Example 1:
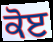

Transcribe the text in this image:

ਕੋੲ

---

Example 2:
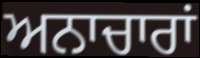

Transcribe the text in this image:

ਅਨਾਚਾਰਾਂ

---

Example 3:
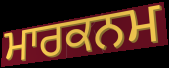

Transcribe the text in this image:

ਮਾਰਕਨਮ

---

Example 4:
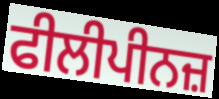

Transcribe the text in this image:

ਫੀਲੀਪੀਨਜ਼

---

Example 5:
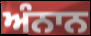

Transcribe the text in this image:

ਅੰਨਾਨ